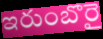
ఇరుంబొరై